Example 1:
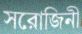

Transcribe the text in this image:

সরোজিনী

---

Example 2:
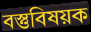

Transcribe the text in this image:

বস্তুবিষয়ক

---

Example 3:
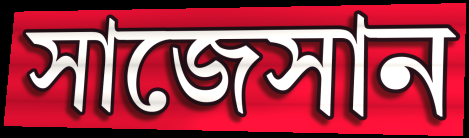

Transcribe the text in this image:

সাজেসান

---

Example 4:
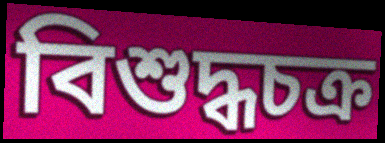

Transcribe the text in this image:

বিশুদ্ধচক্র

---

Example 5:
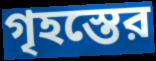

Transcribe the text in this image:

গৃহস্তের